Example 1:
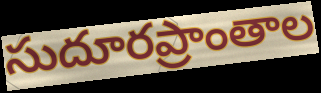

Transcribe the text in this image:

సుదూరప్రాంతాల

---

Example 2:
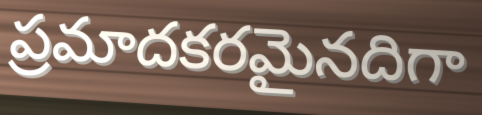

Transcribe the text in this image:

ప్రమాదకరమైనదిగా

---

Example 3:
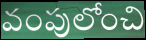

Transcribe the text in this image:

వంపులోంచి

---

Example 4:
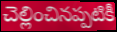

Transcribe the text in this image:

చెల్లించినప్పటికీ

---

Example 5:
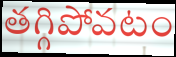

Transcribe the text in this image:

తగ్గిపోవటం